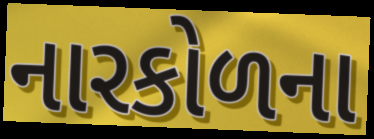
નારકોળના